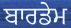
ਬਾਰਡੇਮ